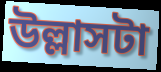
উল্লাসটা